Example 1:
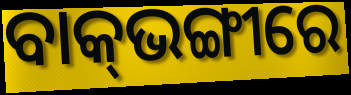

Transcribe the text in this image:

ବାକ୍‍ଭଙ୍ଗୀରେ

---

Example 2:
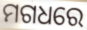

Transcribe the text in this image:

ମଗଧରେ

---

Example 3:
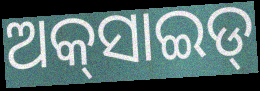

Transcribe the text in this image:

ଅକ୍‌ସାଇଡ୍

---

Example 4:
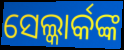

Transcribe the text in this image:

ସେଲ୍କାର୍କଙ୍କ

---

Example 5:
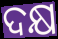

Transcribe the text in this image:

ଦକ୍ଷ